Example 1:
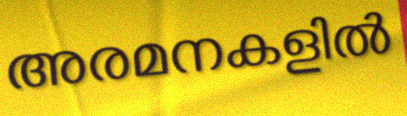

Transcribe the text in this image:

അരമനകളിൽ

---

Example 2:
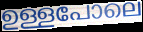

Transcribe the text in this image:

ഉള്ളപോലെ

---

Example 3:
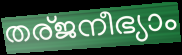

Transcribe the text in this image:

തര്ജനീഭ്യാം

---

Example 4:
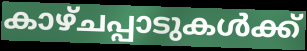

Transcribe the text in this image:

കാഴ്ചപ്പാടുകൾക്ക്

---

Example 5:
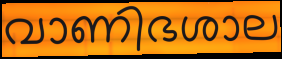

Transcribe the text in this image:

വാണിഭശാല